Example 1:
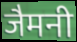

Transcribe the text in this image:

जैमनी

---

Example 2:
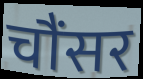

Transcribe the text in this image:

चौंसर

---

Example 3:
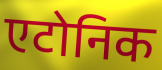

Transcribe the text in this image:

एटोनिक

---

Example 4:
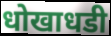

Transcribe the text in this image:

धोखाधडी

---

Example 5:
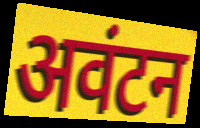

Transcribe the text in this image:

अवंटन